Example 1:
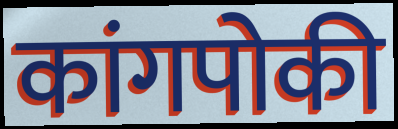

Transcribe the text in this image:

कांगपोकी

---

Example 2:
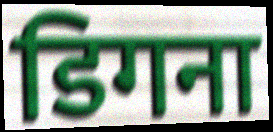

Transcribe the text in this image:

डिगना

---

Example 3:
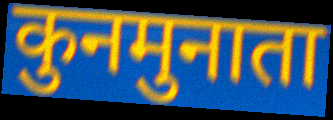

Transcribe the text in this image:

कुनमुनाता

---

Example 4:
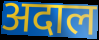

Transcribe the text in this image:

अदाल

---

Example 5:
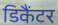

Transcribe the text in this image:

डिकैंटर